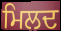
ਮਿਲਦ